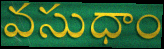
వసుధాం